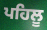
ਪਹਿਲੂ